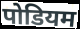
पोडियम